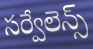
సర్వేలెన్స్